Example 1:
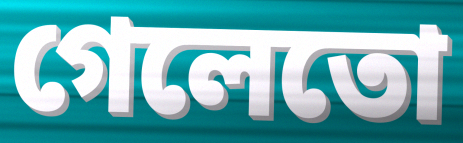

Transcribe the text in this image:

গেলেতো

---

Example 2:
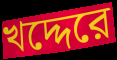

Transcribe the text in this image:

খদ্দেরে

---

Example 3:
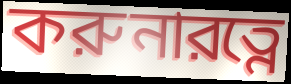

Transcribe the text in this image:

করুনারত্নে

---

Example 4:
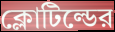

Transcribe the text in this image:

ক্লোটিল্ডের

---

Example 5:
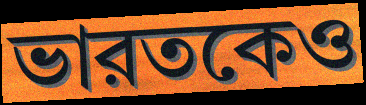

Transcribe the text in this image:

ভারতকেও